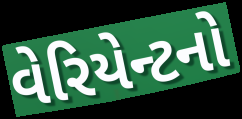
વેરિયેન્ટનો